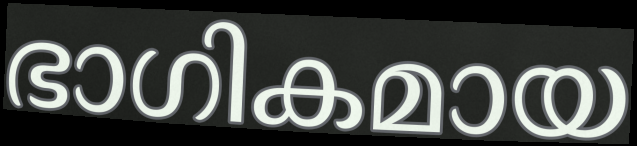
ഭാഗികമായ